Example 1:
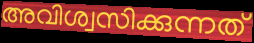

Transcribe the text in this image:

അവിശ്വസിക്കുന്നത്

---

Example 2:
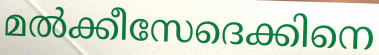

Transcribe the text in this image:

മൽക്കീസേദെക്കിനെ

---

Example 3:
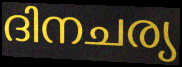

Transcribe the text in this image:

ദിനചര്യ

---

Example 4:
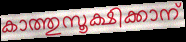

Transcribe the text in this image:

കാത്തുസൂക്ഷിക്കാന്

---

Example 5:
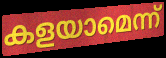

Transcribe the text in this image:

കളയാമെന്ന്